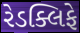
રેડક્લિફે